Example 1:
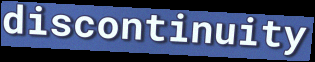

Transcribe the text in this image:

discontinuity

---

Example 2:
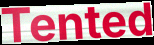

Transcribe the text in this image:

Tented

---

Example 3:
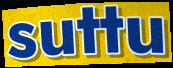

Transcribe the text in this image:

suttu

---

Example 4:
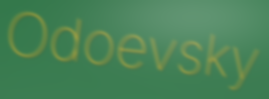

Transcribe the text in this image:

Odoevsky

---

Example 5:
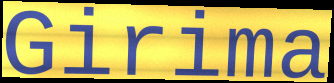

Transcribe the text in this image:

Girima